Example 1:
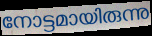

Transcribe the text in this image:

നോട്ടമായിരുന്നു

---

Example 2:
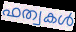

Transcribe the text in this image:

ഫത്വകൾ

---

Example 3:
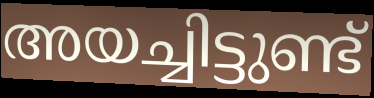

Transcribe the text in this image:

അയച്ചിട്ടുണ്ട്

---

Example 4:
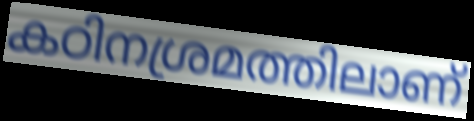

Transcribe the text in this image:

കഠിനശ്രമത്തിലാണ്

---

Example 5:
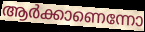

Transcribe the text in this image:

ആർക്കാണെന്നോ